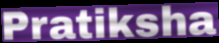
Pratiksha